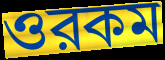
ওরকম